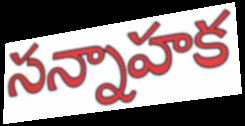
సన్నాహక